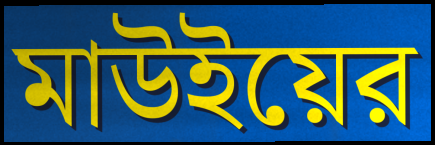
মাউইয়ের